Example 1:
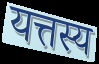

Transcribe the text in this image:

यत्तस्य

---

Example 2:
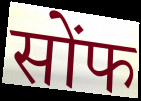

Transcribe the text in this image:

सोंफ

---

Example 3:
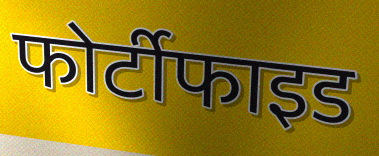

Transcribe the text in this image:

फोर्टीफाइड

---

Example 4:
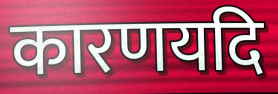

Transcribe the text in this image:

कारणयदि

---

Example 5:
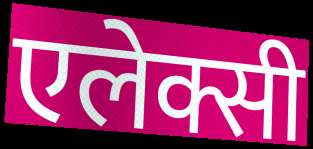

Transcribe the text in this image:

एलेक्सी